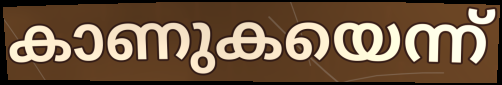
കാണുകയെന്ന്